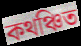
কথঞ্চিত